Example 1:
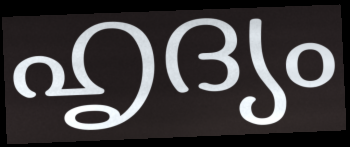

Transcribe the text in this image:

ഹൃദ്യം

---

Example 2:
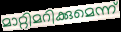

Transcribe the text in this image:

മാറ്റിമറിക്കുമെന്ന്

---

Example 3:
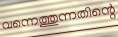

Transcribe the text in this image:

വന്നെത്തുന്നതിന്റെ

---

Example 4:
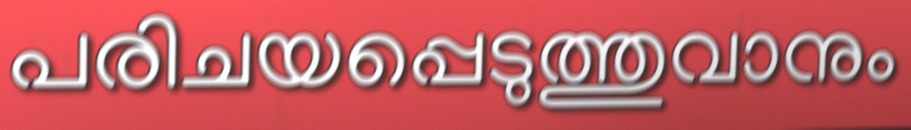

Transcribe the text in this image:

പരിചയപ്പെടുത്തുവാനും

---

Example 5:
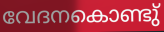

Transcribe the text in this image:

വേദനകൊണ്ടു്